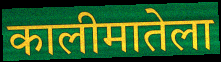
कालीमातेला